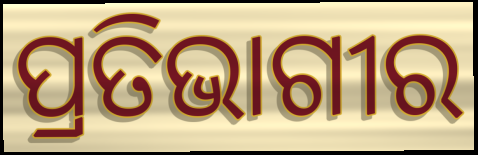
ପ୍ରତିଭାଗୀର